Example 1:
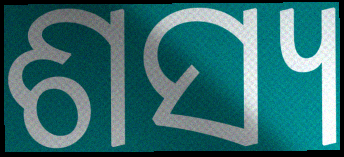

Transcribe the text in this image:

ଶସ୍ଯ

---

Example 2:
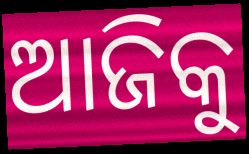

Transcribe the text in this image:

ଆଜିକୁ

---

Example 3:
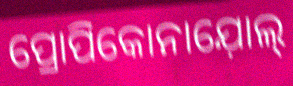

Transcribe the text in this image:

ପ୍ରୋପିକୋନାଯ଼ୋଲ୍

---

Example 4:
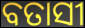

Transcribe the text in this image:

ବତାସୀ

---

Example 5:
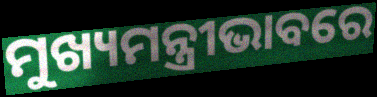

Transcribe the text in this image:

ମୁଖ୍ୟମନ୍ତ୍ରୀଭାବରେ